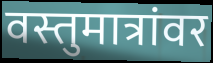
वस्तुमात्रांवर